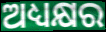
ଅଧ୍ୟକ୍ଷର